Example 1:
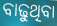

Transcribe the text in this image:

ବାଢୁଥିବା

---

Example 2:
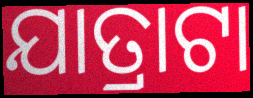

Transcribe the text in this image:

ଯାତ୍ରାଟା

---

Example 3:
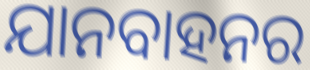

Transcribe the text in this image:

ଯାନବାହନର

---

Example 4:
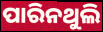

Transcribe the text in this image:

ପାରିନଥୁଲି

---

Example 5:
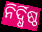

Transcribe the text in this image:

ନିର୍ଦ୍ଧିଷ୍ଠ